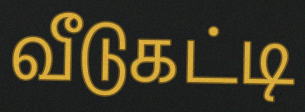
வீடுகட்டி